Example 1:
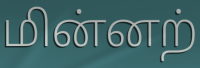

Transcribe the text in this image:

மின்னற்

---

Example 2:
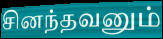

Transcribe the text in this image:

சினந்தவனும்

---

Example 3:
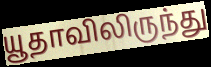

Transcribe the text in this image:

யூதாவிலிருந்து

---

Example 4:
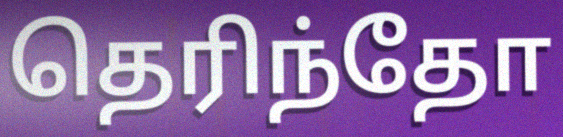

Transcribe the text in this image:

தெரிந்தோ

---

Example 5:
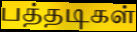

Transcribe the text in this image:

பத்தடிகள்